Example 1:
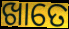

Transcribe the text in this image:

ଖାତେ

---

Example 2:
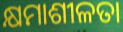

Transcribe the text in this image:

କ୍ଷମାଶୀଳତା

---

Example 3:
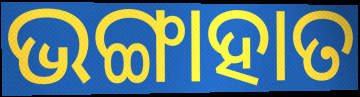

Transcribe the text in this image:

ଭଙ୍ଗାହାତ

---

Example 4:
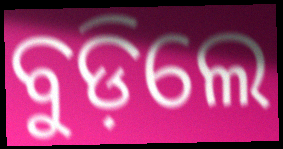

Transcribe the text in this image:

ବୁଡ଼ିଲେ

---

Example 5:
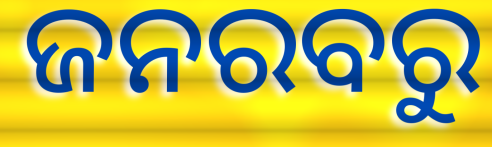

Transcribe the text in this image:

ଜନରବରୁ